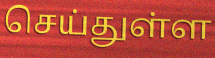
செய்துள்ள